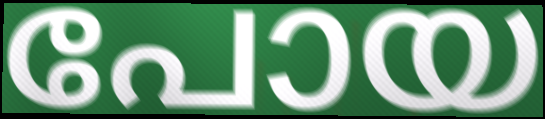
പോയ